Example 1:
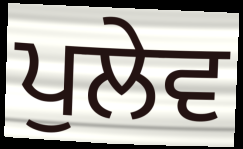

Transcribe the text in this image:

ਪੁਲੇਵ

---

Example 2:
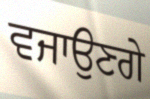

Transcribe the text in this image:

ਵਜਾਉਣਗੇ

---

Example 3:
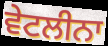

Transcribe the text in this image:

ਵੇਟਲੀਨਾ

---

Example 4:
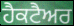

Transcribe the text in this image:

ਹੈਕਟੈਅਰ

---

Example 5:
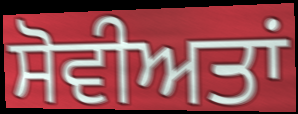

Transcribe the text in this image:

ਸੋਵੀਅਤਾਂ